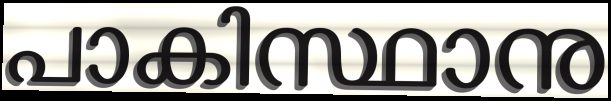
പാകിസ്ഥാനു